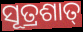
ସୂତ୍ରଶାତ୍